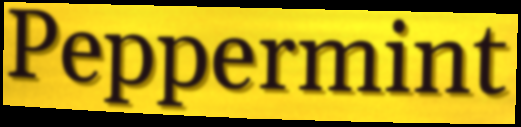
Peppermint